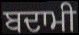
ਬਦਾਮੀ